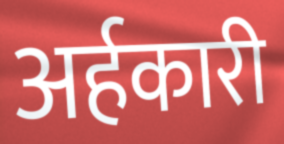
अर्हकारी